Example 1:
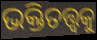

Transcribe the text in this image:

ଭକ୍ତିତତ୍ତ୍ୱକୁ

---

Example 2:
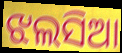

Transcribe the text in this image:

ଝଲସିଆ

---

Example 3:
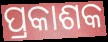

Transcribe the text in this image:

ପ୍ରକାଶକ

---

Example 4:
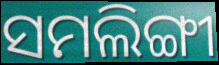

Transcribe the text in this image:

ସମଲିଙ୍ଗୀ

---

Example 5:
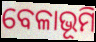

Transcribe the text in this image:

ବେଳାଭୂମି